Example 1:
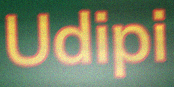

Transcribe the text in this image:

Udipi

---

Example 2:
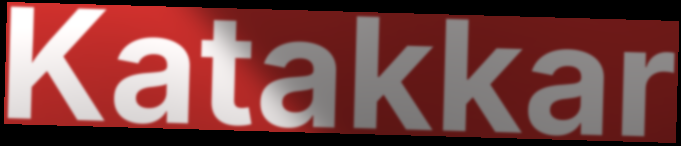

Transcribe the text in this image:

Katakkar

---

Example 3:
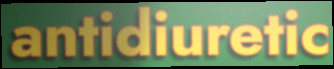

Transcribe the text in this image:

antidiuretic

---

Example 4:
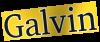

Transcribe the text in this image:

Galvin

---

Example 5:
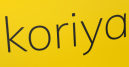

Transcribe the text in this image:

koriya